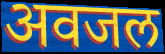
अवजल